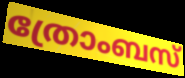
ത്രോംബസ്